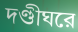
দণ্ডীঘরে